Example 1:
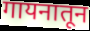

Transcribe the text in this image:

गायनातून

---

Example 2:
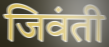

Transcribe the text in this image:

जिवंती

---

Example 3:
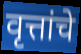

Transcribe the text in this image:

वृत्तांचे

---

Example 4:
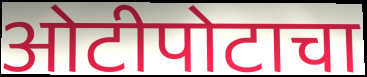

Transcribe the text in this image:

ओटीपोटाचा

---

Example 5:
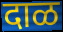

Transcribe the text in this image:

दाळ